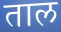
ताल